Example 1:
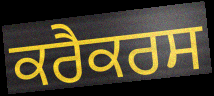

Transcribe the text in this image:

ਕਰੈਕਰਸ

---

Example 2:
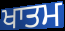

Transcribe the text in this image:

ਖਾਤਮ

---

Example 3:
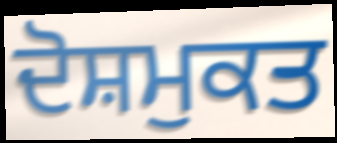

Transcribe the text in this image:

ਦੋਸ਼ਮੁਕਤ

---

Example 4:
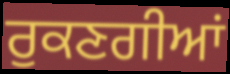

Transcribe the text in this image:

ਰੁਕਣਗੀਆਂ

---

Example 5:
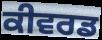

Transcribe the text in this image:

ਕੀਵਰਡ